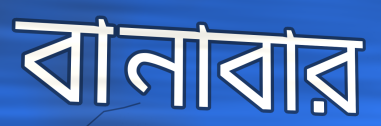
বানাবার